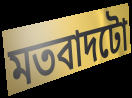
মতবাদটো